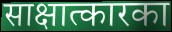
साक्षात्कारका